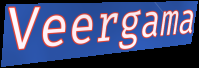
Veergama